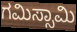
ಗಮಿಸ್ಸಾಮಿ